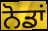
ਨੋਡਾਂ